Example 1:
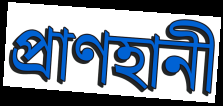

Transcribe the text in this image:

প্রাণহানী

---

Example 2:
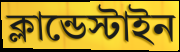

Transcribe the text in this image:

ক্লান্ডেস্টাইন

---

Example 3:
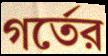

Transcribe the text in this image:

গর্তের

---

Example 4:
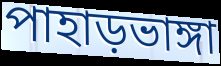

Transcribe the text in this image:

পাহাড়ভাঙ্গা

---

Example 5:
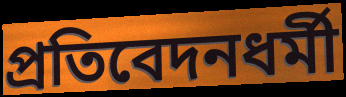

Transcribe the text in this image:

প্রতিবেদনধর্মী